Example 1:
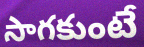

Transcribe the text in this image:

సాగకుంటే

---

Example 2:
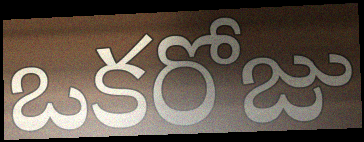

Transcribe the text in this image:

ఒకరోజు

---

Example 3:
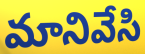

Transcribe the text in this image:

మానివేసి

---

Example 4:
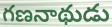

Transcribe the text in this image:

గణనాథుడు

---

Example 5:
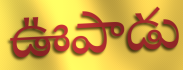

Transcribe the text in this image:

ఊపాడు